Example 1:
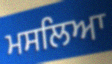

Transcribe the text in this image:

ਮਸਲਿਆ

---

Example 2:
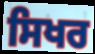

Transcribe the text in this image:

ਸਿਖਰ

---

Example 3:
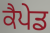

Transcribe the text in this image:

ਕੈਪੇਡ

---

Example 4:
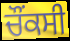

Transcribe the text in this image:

ਚੌਂਕਸੀ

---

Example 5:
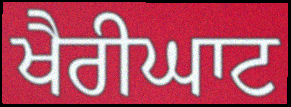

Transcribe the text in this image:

ਖੈਰੀਘਾਟ